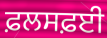
ਫ਼ਲਸਫ਼ਈ